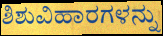
ಶಿಶುವಿಹಾರಗಳನ್ನು